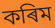
কৰিম